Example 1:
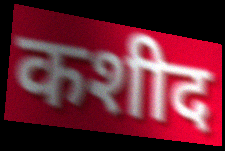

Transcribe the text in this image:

कशीद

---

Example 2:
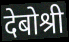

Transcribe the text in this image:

देबोश्री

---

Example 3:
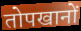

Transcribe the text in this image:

तोपखानों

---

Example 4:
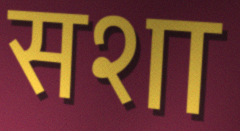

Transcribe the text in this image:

सशा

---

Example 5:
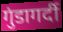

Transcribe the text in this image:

गुंडागर्दी